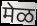
मेळ